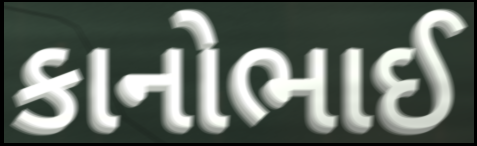
કાનોભાઈ